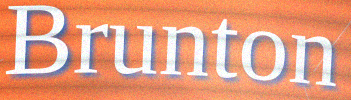
Brunton